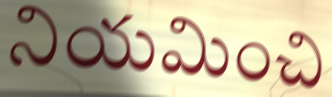
నియమించి